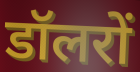
डॉलरों